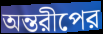
অন্তরীপের